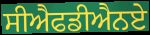
ਸੀਐਫਡੀਐਨਏ